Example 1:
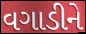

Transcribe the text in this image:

વગાડીને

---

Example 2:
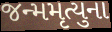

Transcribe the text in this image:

જન્મમૃત્યુના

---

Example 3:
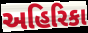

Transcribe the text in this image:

અહિરિકા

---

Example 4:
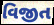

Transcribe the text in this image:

વિજીત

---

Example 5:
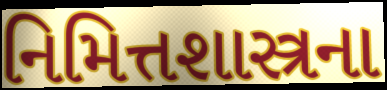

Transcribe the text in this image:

નિમિત્તશાસ્ત્રના